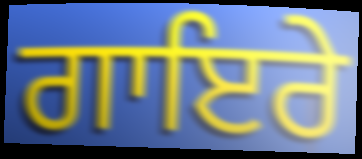
ਗਾਇਰੇ